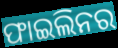
ଫାଇଲିନର